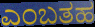
ಎಂಬತಹ